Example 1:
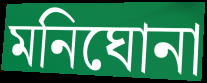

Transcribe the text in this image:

মনিঘোনা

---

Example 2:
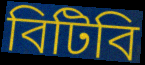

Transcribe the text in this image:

বিটিবি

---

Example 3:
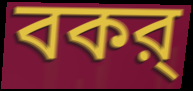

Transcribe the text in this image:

বকর্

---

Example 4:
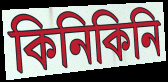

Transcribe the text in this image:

কিনিকিনি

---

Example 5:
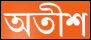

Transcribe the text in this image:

অতীশ